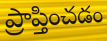
ప్రాప్తించడం